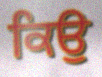
ਕਿਉ